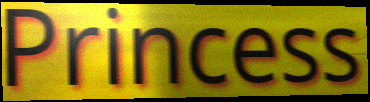
Princess